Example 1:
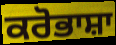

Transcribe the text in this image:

ਕਰੋਭਾਸ਼ਾ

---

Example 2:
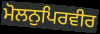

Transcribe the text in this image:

ਮੋਲਨੁਪਿਰਵੀਰ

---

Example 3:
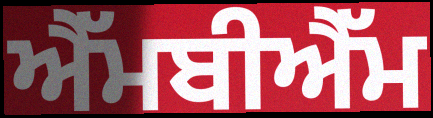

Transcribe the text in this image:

ਐੱਮਬੀਐੱਮ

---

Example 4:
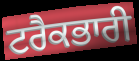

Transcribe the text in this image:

ਟਰੈਕਭਾਰੀ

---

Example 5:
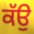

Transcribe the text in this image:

ਕੱਉ